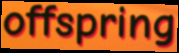
offspring